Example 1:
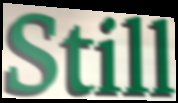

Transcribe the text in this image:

Still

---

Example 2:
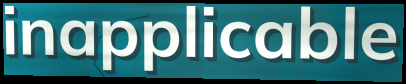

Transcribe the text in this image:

inapplicable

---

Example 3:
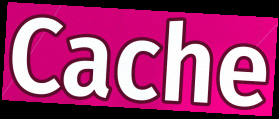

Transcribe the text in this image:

Cache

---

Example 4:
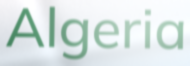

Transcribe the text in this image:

Algeria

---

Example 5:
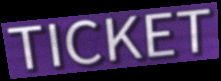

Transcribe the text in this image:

TICKET